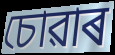
চোৱাৰ